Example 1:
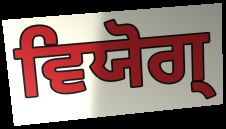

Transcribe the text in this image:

ਵਿਯੋਗ੍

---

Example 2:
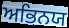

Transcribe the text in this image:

ਅਭਿਨਯ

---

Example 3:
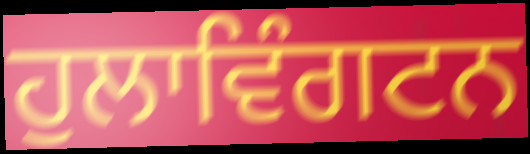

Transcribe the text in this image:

ਹੁਲਾਵਿੰਗਟਨ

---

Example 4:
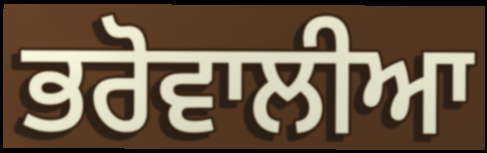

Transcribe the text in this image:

ਭਰੋਵਾਲੀਆ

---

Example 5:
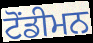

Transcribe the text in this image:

ਟੋਂਡੀਮਨ